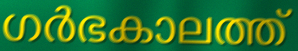
ഗർഭകാലത്ത്